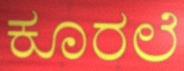
ಕೂರಲೆ